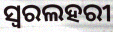
ସ୍ୱରଲହରୀ